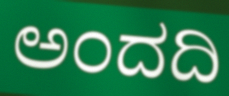
ಅಂದದಿ